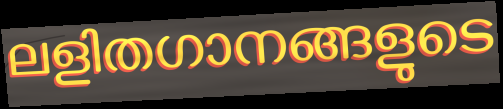
ലളിതഗാനങ്ങളുടെ